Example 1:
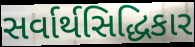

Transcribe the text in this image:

સર્વાર્થસિદ્ધિકાર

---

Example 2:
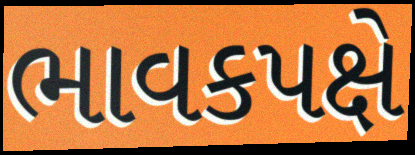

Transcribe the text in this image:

ભાવકપક્ષે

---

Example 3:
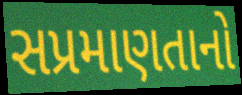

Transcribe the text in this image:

સપ્રમાણતાનો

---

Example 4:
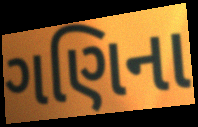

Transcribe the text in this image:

ગણિના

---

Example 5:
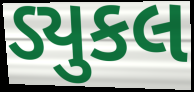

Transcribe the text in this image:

ડ્યુકલ